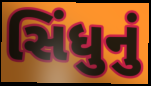
સિંધુનું